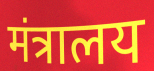
मंत्रालय